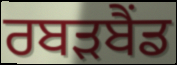
ਰਬੜਬੈਂਡ